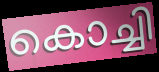
കൊച്ചി